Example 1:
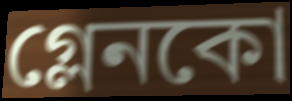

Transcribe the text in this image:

গ্লেনকো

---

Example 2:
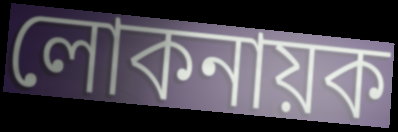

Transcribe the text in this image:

লোকনায়ক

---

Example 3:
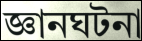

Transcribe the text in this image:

জ্ঞানঘটনা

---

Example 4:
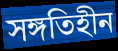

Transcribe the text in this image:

সঙ্গতিহীন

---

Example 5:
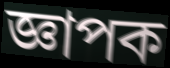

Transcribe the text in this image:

জ্ঞাপক